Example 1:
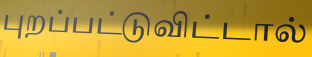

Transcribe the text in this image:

புறப்பட்டுவிட்டால்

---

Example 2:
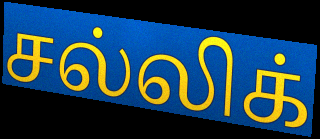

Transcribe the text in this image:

சல்லிக்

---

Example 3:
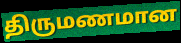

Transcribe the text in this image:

திருமணமான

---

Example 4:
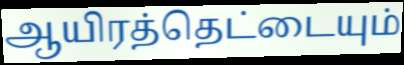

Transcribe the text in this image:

ஆயிரத்தெட்டையும்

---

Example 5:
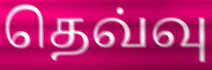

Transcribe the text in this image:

தெவ்வு